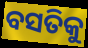
ବସତିକୁ